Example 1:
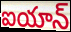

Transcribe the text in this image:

ఐయాన్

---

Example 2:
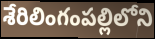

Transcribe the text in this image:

శేరిలింగంపల్లిలోని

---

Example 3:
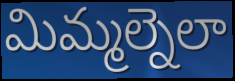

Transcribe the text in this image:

మిమ్మల్నెలా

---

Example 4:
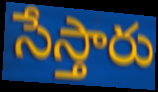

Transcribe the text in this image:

సేస్తారు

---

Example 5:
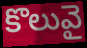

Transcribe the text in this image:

కొలువై